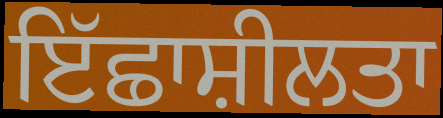
ਇੱਛਾਸ਼ੀਲਤਾ